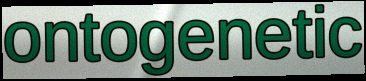
ontogenetic